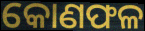
କୋଣଫଳ